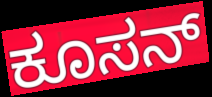
ಕೂಸನ್